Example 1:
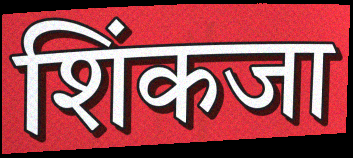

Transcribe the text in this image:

शिंकजा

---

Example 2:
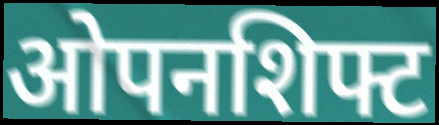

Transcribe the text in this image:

ओपनशिफ्ट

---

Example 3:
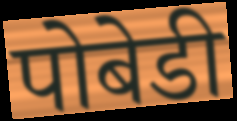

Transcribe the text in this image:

पोबेडी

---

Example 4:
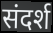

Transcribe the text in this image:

संदर्श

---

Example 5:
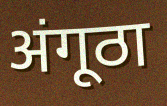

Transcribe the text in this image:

अंगूठा